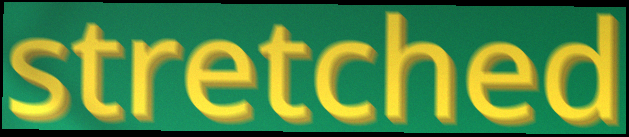
stretched